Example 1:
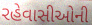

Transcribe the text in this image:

રહેવાસીઓની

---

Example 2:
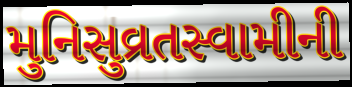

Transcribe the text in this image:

મુનિસુવ્રતસ્વામીની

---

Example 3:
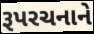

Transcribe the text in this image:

રૂપરચનાને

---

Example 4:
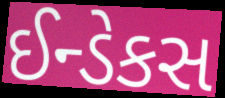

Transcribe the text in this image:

ઈન્ડેકસ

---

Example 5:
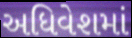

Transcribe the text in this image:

અધિવેશમાં